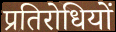
प्रतिरोधियों